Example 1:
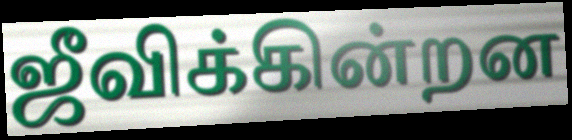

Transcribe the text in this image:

ஜீவிக்கின்றன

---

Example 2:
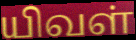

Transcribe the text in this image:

யிவள்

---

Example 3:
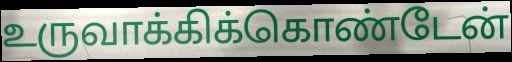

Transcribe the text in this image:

உருவாக்கிக்கொண்டேன்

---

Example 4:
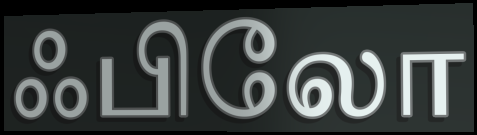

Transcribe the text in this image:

ஃபிலோ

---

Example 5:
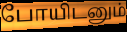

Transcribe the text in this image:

போயிடனும்